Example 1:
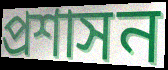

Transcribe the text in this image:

প্রশাসন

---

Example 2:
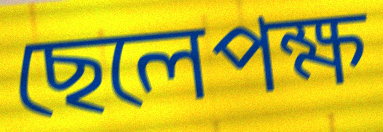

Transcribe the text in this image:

ছেলেপক্ষ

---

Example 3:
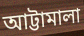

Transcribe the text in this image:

আট্টামালা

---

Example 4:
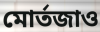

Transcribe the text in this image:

মোর্তজাও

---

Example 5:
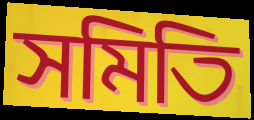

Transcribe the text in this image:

সমিতি